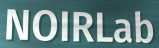
NOIRLab